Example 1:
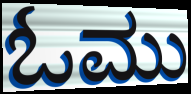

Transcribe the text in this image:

ಓಮು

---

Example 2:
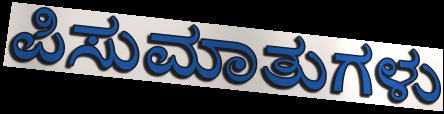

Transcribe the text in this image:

ಪಿಸುಮಾತುಗಳು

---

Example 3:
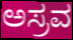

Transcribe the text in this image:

ಅಸ್ರವ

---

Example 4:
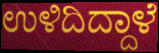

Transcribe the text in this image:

ಉಳಿದಿದ್ದಾಳೆ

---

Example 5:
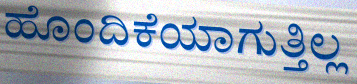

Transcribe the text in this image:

ಹೊಂದಿಕೆಯಾಗುತ್ತಿಲ್ಲ